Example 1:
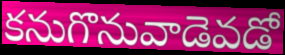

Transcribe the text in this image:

కనుగొనువాడెవడో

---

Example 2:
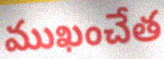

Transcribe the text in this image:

ముఖంచేత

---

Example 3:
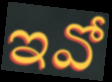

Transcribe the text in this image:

ఇవో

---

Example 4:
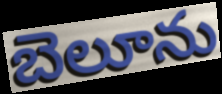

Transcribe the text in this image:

బెలూను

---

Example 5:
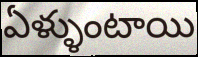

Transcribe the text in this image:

ఏళ్ళుంటాయి